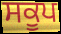
ਸਕੂਪ